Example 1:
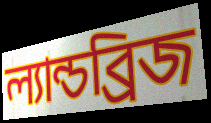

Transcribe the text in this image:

ল্যান্ডব্রিজ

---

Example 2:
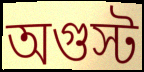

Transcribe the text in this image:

অগুস্ট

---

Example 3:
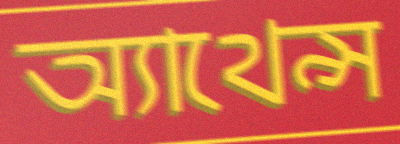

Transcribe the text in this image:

অ্যাথেন্স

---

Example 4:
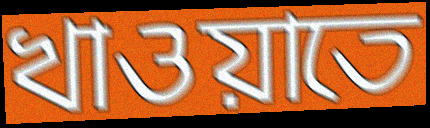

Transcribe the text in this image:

খাওয়াতে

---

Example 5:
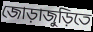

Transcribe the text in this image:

জোড়াজুড়িতে